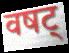
वषट्